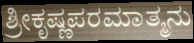
ಶ್ರೀಕೃಷ್ಣಪರಮಾತ್ಮನು